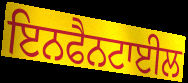
ਇਨਫੈਨਟਾਈਲ